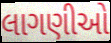
લાગણીઓ